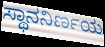
ಸ್ಥಾನನಿರ್ಣಯ